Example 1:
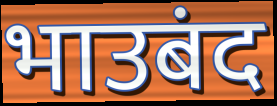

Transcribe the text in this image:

भाउबंद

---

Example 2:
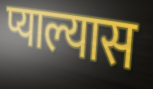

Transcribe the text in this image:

प्याल्यास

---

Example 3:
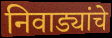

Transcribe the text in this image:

निवाड्यांचे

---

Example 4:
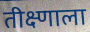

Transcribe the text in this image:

तीक्ष्णाला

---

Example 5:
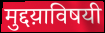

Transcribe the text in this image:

मुद्दय़ाविषयी